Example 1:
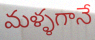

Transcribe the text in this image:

మళ్ళగానే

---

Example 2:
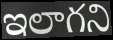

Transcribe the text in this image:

ఇలాగని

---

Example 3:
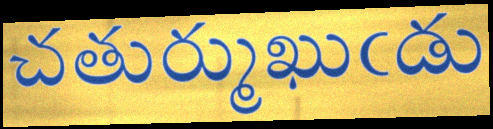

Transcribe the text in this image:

చతుర్ముఖుఁడు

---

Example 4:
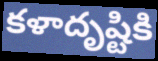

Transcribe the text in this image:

కళాదృష్టికి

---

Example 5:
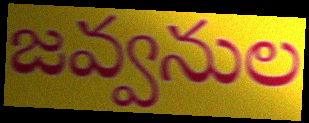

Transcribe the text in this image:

జవ్వనుల